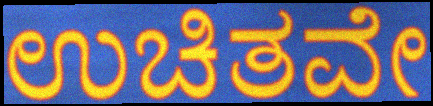
ಉಚಿತವೇ